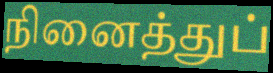
நினைத்துப்